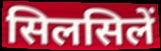
सिलसिलें